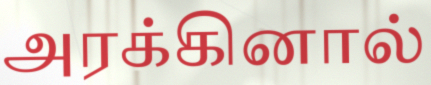
அரக்கினால்